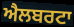
ਐਲਬਰਟਾ